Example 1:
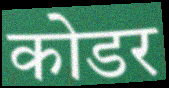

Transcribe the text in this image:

कोडर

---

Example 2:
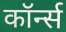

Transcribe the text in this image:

कॉर्न्स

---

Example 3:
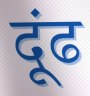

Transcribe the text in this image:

दूंढ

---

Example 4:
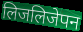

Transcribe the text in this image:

लिजलिजेपन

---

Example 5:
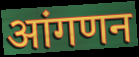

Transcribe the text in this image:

आंगणन